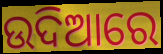
ଉଦିଆରେ